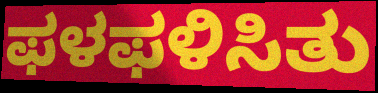
ಫಳಫಳಿಸಿತು